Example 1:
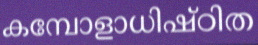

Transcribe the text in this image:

കമ്പോളാധിഷ്ഠിത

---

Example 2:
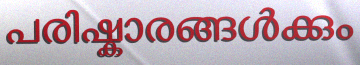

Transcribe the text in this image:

പരിഷ്കാരങ്ങൾക്കും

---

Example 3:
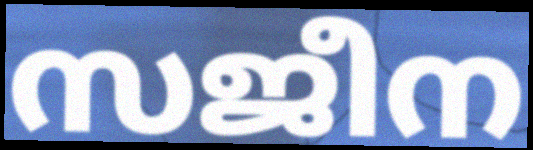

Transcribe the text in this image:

സജീന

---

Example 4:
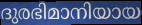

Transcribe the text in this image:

ദുരഭിമാനിയായ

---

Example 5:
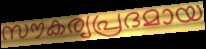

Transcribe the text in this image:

സൗകര്യപ്രദമായ